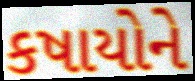
કષાયોને